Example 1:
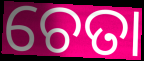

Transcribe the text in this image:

ଚେତା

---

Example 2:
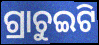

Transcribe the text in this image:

ଗ୍ରାଚୁଇଟି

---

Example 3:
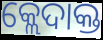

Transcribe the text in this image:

କ୍ଲେଦାକ୍ତ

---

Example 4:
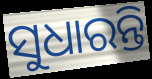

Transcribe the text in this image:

ସୁଧାରନ୍ତି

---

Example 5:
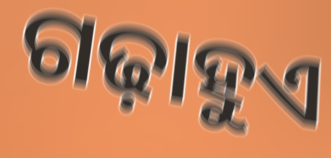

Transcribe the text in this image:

ଗଢ଼ାହୁଏ